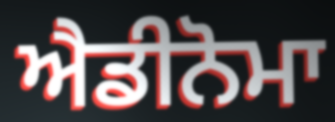
ਐਡੀਨੋਮਾ